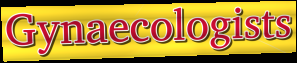
Gynaecologists